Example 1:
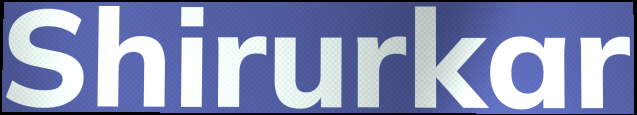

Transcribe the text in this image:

Shirurkar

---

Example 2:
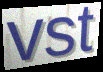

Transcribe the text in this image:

vst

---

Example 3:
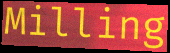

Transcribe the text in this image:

Milling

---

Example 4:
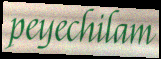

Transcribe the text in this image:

peyechilam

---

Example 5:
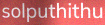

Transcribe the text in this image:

solputhithu